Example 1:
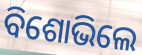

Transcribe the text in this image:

ବିଶୋଭିଲେ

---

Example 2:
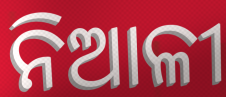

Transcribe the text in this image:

ନିଆଳୀ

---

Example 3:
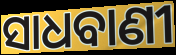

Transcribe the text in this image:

ସାଧବାଣୀ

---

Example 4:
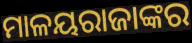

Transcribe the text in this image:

ମାଳୟରାଜାଙ୍କର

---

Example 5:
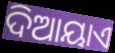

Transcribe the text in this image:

ଦିଆୟାଏ